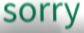
sorry